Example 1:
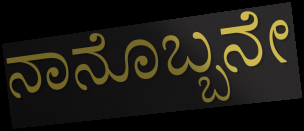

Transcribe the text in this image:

ನಾನೊಬ್ಬನೇ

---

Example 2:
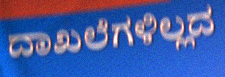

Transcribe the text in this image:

ದಾಖಲೆಗಳಿಲ್ಲದ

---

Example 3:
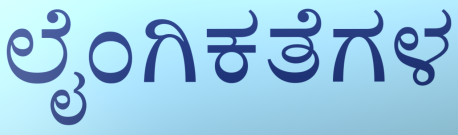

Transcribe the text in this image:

ಲೈಂಗಿಕತೆಗಳ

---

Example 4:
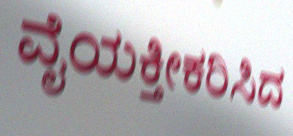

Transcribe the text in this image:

ವೈಯಕ್ತೀಕರಿಸಿದ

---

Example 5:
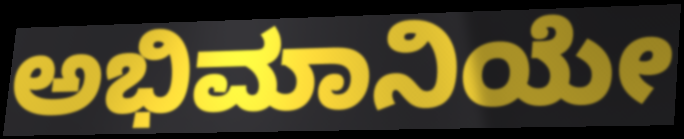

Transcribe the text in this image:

ಅಭಿಮಾನಿಯೇ